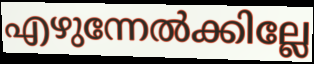
എഴുന്നേൽക്കില്ലേ